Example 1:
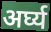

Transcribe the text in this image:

अर्घ्य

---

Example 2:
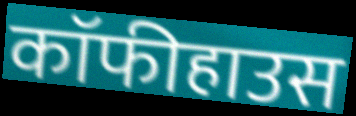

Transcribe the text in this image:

कॉफीहाउस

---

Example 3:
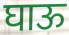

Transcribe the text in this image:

घाऊ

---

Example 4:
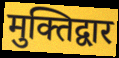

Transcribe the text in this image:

मुक्तिद्वार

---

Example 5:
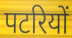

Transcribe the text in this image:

पटरियों